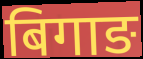
बिगाङ